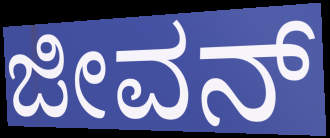
ಜೀವನ್